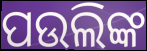
ପଉଲିଙ୍କ